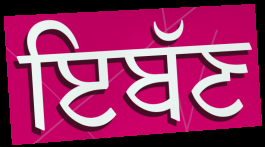
ਇਬੱਣ